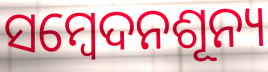
ସମ୍ବେଦନଶୂନ୍ୟ